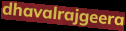
dhavalrajgeera